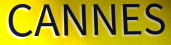
CANNES